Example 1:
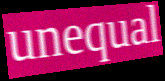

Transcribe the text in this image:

unequal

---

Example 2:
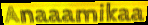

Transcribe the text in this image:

Anaaamikaa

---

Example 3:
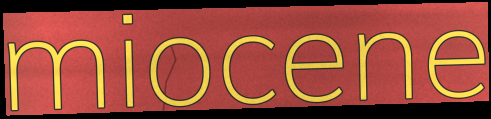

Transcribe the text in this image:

miocene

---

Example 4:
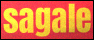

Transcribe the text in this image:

sagale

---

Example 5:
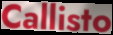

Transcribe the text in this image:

Callisto